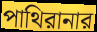
পাথিরানার